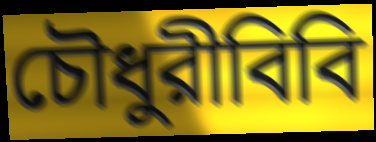
চৌধুরীবিবি